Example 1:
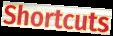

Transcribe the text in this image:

Shortcuts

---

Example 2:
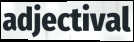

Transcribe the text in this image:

adjectival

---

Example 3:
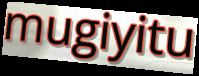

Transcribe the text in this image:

mugiyitu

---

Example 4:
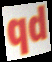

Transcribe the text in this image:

qd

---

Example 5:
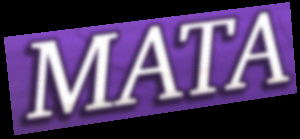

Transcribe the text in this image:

MATA